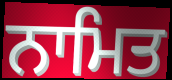
ਨਾਮਿਤ